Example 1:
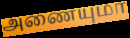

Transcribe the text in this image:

அணையுமா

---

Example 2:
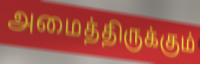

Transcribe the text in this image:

அமைத்திருக்கும்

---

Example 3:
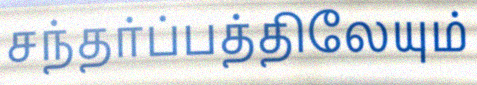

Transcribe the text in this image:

சந்தர்ப்பத்திலேயும்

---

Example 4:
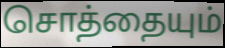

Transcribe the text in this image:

சொத்தையும்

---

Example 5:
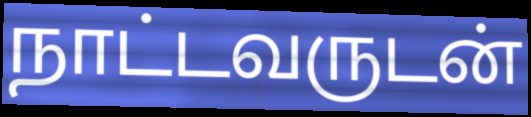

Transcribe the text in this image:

நாட்டவருடன்